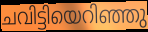
ചവിട്ടിയെറിഞ്ഞു